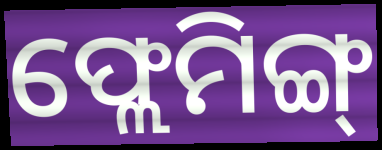
ଫ୍ଲେମିଙ୍ଗ୍